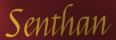
Senthan